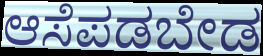
ಆಸೆಪಡಬೇಡ